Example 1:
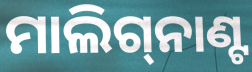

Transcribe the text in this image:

ମାଲିଗ୍‌ନାଣ୍ଟ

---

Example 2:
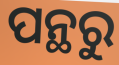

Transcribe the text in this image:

ପନ୍ଥରୁ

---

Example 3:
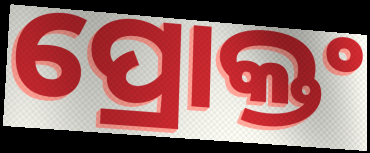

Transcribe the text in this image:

ପ୍ରୋକ୍ତଂ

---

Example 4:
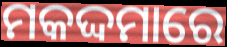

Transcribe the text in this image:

ମକଦ୍ଦମାରେ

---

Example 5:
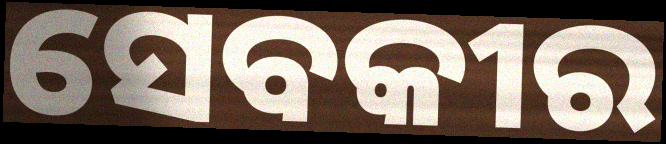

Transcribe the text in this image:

ସେବକୀର